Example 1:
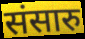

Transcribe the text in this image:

संसारु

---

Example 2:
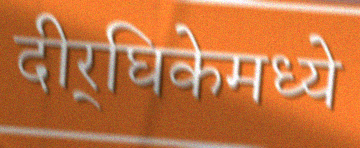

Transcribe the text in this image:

दीर्घिकेमध्ये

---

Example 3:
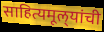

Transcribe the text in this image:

साहित्यमूल्यांची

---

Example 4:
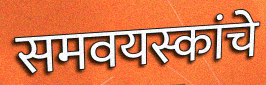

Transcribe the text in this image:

समवयस्कांचे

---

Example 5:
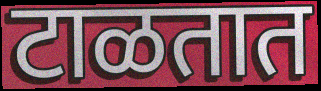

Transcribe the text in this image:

टाळतात